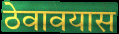
ठेवावयास